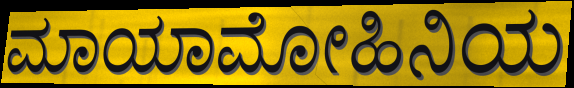
ಮಾಯಾಮೋಹಿನಿಯ